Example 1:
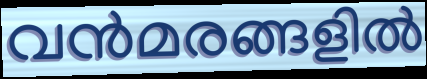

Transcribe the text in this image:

വൻമരങ്ങളിൽ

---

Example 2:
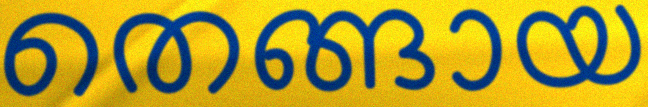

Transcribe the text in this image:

തെങ്ങായ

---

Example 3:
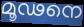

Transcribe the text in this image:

മൂഢനെ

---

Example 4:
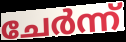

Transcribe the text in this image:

ചേർന്ന്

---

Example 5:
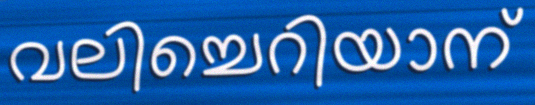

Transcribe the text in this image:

വലിച്ചെറിയാന്